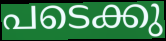
പടെക്കു